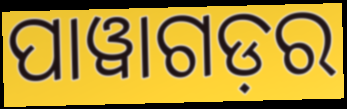
ପାୱାଗଡ଼ର